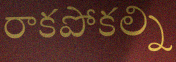
రాకపోకల్ని